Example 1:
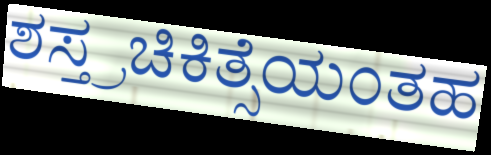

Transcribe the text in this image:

ಶಸ್ತ್ರಚಿಕಿತ್ಸೆಯಂತಹ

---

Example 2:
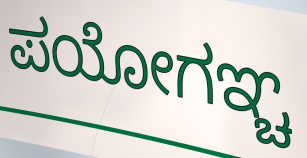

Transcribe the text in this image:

ಪಯೋಗಞ್ಚ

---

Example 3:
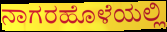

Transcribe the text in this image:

ನಾಗರಹೊಳೆಯಲ್ಲಿ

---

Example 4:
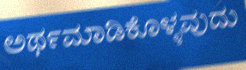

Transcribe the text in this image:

ಅರ್ಥಮಾಡಿಕೊಳ್ಳವುದು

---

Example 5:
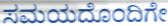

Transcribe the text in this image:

ಸಮಯದೊಂದಿಗೇ